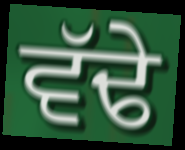
ਵੱਢੇ